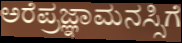
ಅರೆಪ್ರಜ್ಞಾಮನಸ್ಸಿಗೆ